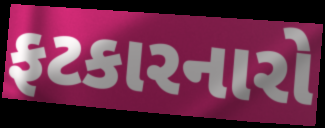
ફટકારનારો